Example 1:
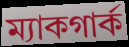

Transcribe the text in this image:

ম্যাকগার্ক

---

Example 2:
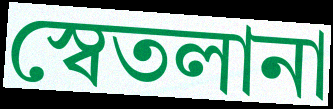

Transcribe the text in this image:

স্বেতলানা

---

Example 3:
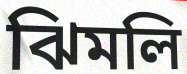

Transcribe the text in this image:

ঝিমলি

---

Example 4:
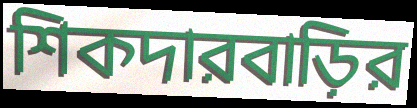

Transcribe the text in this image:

শিকদারবাড়ির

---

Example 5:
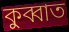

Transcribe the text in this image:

কুব্বাত